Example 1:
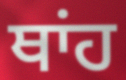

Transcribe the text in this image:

ਥਾਂਹ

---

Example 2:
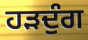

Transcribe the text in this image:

ਹੜਦੁੰਗ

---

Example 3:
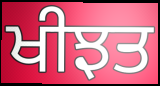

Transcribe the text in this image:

ਖੀਝਤ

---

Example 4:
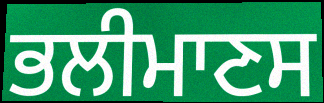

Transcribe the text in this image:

ਭਲੀਮਾਣਸ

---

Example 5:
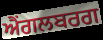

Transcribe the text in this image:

ਐਂਗਲਬਰਗ